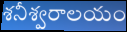
శనీశ్వరాలయం